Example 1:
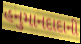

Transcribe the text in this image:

હનુમાનદાદાની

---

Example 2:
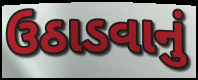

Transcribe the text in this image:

ઉઠાડવાનું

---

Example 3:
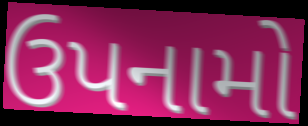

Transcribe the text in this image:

ઉપનામો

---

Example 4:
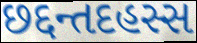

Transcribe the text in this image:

છદ્દન્તદહસ્સ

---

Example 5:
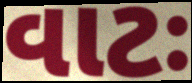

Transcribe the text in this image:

વાટઃ